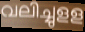
വലിച്ചുളള